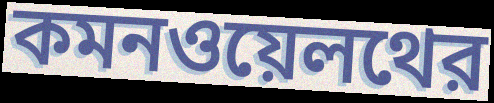
কমনওয়েলথের